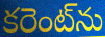
కరెంట్‌ను